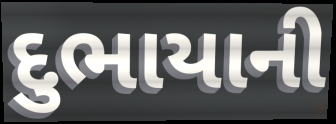
દુભાયાની